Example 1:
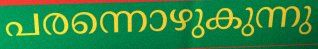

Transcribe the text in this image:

പരന്നൊഴുകുന്നു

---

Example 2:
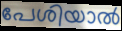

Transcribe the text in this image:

പേശിയാൽ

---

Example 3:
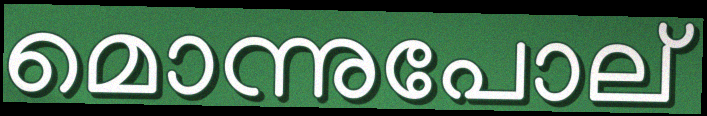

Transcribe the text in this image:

മൊന്നുപോല്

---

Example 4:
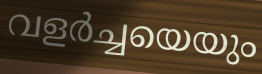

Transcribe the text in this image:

വളർച്ചയെയും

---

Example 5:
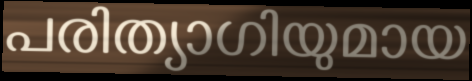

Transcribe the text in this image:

പരിത്യാഗിയുമായ